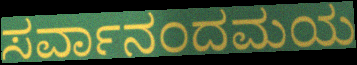
ಸರ್ವಾನಂದಮಯ